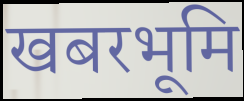
खबरभूमि